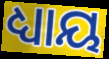
ଧ୍ୟାୟ